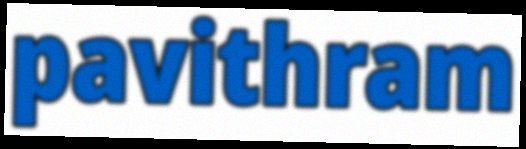
pavithram